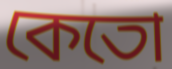
কেতো